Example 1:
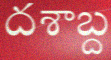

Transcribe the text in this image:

దశాబ్ద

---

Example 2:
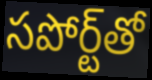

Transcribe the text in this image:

సపోర్ట్‌తో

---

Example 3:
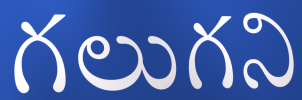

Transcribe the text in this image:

గలుగని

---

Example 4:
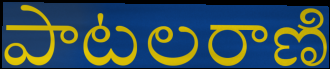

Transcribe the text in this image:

పాటలరాణి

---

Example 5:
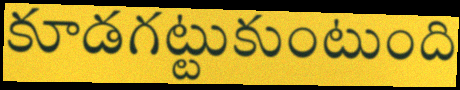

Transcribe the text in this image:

కూడగట్టుకుంటుంది